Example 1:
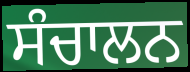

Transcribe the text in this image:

ਸੰਚਾਲਨ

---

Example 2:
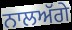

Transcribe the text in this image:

ਨਾਲਅੱਗੇ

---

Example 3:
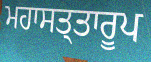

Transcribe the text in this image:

ਮਹਾਸਤ੍ਤਾਰੂਪ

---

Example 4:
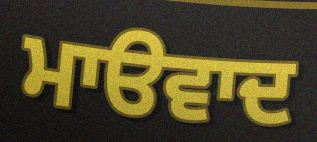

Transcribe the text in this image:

ਮਾੳਵਾਦ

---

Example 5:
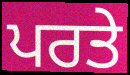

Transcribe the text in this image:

ਪਰਤੇ